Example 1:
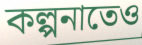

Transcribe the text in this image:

কল্পনাতেও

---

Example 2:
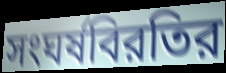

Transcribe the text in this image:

সংঘর্ষবিরতির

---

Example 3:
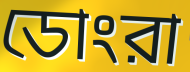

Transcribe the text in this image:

ডোংরা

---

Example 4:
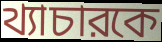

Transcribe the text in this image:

থ্যাচারকে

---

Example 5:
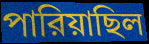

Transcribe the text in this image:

পারিয়াছিল